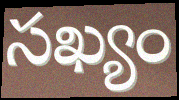
సఖ్యం